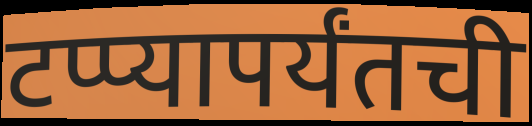
टप्प्यापर्यंतची